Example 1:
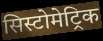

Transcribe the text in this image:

सिस्टोमेट्रिक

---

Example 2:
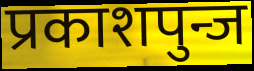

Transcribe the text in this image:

प्रकाशपुन्ज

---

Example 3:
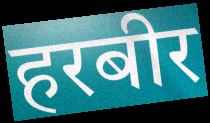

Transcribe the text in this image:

हरबीर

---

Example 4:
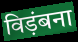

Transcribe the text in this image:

विड़ंबना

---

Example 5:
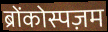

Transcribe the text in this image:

ब्रोंकोस्पज़म